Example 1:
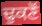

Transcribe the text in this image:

ਢੁਕਣੋਂ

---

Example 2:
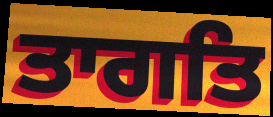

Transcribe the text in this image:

ਤਾਗਤਿ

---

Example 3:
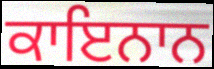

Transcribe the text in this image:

ਕਾਇਨਾਨ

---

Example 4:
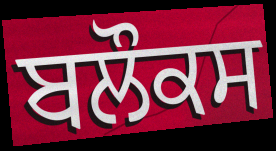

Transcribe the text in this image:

ਬਲੌਕਸ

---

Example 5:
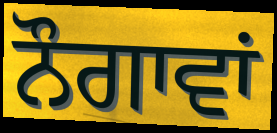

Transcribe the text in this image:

ਨੌਗਾਵਾਂ